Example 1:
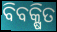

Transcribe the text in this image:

ବିବକ୍ଷିତ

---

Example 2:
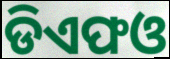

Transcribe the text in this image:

ଡିଏଫଓ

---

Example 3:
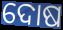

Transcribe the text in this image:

ଦୋଷ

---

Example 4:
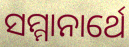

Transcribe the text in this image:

ସମ୍ମାନାର୍ଥେ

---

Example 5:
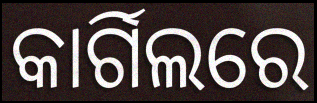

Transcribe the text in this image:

କାର୍ଗିଲରେ